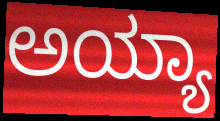
ಅಯ್ಯಾ